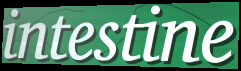
intestine